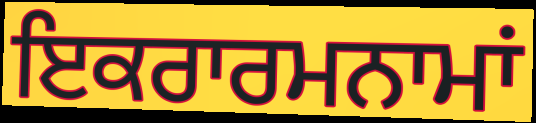
ਇਕਰਾਰਮਨਾਮਾਂ